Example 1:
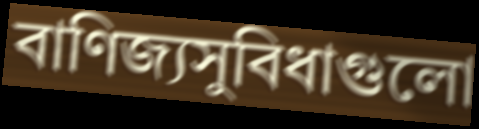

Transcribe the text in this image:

বাণিজ্যসুবিধাগুলো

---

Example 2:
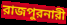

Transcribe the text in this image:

রাজপুরনারী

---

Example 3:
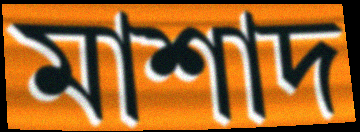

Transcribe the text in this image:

মাশাদ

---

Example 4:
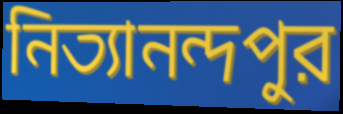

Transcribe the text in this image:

নিত্যানন্দপুর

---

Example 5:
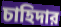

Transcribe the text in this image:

চাহিদার